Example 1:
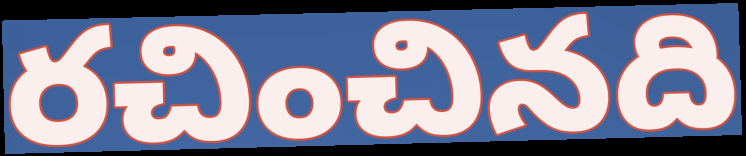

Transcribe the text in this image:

రచించినది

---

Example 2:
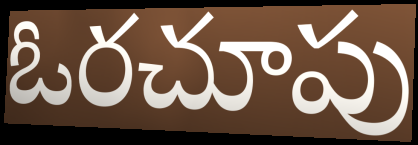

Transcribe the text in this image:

ఓరచూపు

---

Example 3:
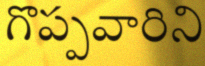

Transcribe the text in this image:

గొప్పవారిని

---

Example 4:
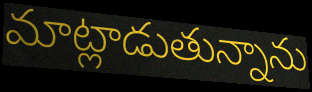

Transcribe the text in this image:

మాట్లాడుతున్నాను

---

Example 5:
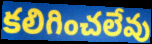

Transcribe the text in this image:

కలిగించలేవు